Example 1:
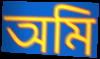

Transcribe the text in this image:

অমি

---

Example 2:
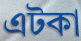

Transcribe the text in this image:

এটকা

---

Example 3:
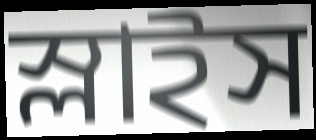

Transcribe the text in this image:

স্লাইস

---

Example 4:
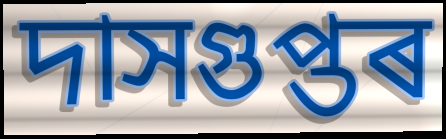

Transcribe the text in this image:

দাসগুপ্তৰ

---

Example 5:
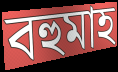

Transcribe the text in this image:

বহুমাহ